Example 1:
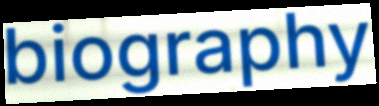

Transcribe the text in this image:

biography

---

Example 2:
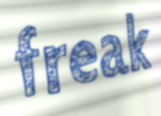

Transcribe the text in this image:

freak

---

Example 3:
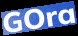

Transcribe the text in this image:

GOra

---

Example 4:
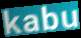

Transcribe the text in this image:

kabu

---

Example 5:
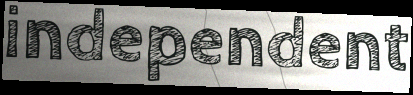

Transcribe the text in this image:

independent